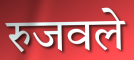
रुजवले